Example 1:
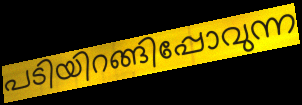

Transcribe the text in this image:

പടിയിറങ്ങിപ്പോവുന്ന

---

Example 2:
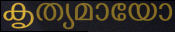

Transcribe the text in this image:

കൃത്യമായോ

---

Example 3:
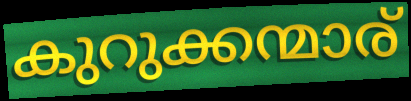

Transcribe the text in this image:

കുറുക്കന്മാര്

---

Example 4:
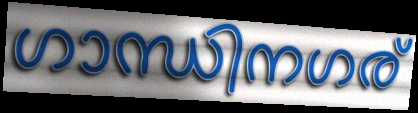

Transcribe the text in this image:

ഗാന്ധിനഗര്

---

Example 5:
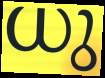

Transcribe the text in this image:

ധു